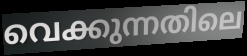
വെക്കുന്നതിലെ